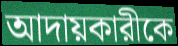
আদায়কারীকে